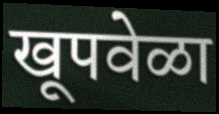
खूपवेळा